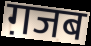
ग़जब